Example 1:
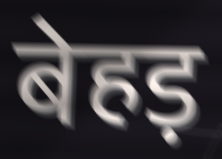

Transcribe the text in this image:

बेहड़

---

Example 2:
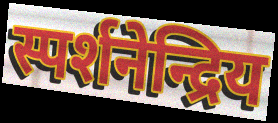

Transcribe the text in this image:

स्पर्शनेन्द्रिय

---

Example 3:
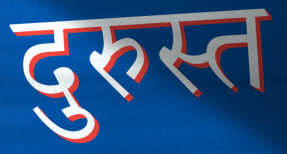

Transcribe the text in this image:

दुरुस्त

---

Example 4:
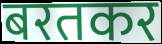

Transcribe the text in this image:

बरतकर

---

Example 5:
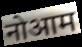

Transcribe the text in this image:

नोआम